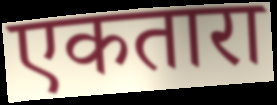
एकतारा